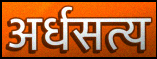
अर्धसत्य